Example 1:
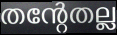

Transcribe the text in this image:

തന്റേതല്ല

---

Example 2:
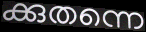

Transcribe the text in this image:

ക്കുതന്നെ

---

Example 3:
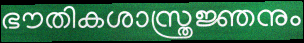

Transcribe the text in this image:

ഭൗതികശാസ്ത്രജ്ഞനും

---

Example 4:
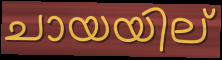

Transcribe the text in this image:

ചായയില്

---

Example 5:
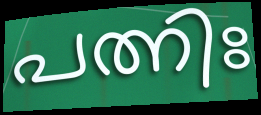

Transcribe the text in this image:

പത്നിഃ